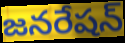
జనరేషన్